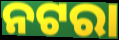
ନଟରା